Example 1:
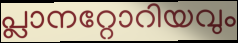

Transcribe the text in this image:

പ്ലാനറ്റോറിയവും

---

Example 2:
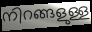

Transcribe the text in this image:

നിറങ്ങളുള്ള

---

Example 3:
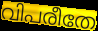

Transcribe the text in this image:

വിപരീതേ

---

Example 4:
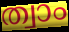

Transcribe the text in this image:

ത്വാം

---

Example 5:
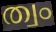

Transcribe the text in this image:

ത്വം